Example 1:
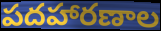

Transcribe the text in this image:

పదహారణాల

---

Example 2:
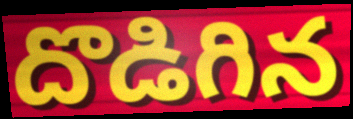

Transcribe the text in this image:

దొడిగిన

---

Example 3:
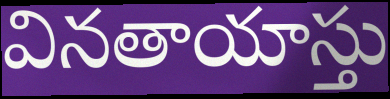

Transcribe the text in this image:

వినతాయాస్తు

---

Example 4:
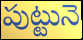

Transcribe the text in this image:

పుట్టునె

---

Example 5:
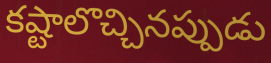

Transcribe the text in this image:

కష్టాలొచ్చినప్పుడు